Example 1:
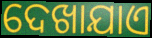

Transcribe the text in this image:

ଦେଖାଯାଏ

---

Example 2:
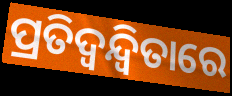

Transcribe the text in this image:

ପ୍ରତିଦ୍ୱନ୍ଦ୍ବିତାରେ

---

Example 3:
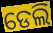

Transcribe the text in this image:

ଡେଲି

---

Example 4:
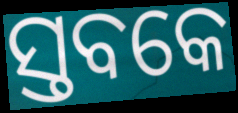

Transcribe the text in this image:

ସ୍ତବକେ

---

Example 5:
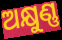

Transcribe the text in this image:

ଅକ୍ଷୁଣ୍ଣ